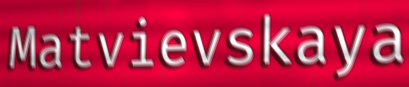
Matvievskaya